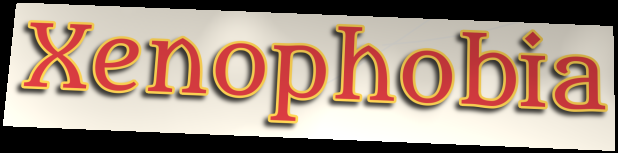
Xenophobia